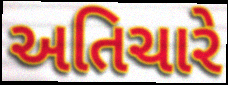
અતિચારે